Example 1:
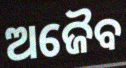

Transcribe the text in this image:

ଅଜୈବ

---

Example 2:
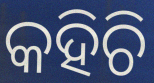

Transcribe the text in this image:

କହିଚି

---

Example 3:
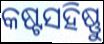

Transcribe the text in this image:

କଷ୍ଟସହିଷ୍ଣୁ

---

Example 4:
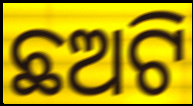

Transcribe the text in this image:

ଛଅଟି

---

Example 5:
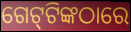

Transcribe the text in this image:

ଗେଟ୍‌ଟିଙ୍କଠାରେ